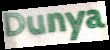
Dunya